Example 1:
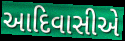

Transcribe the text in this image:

આદિવાસીએ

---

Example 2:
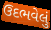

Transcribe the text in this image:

ઉદભવેલું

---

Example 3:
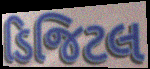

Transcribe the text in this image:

ડિજિટલ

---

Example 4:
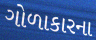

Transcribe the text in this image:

ગોળાકારના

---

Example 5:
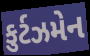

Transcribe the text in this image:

કુર્ટઝમેન